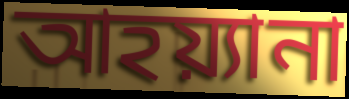
আহয়্যানা